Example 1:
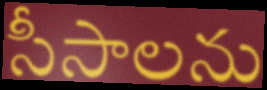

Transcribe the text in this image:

సీసాలను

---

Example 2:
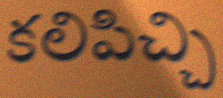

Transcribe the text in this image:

కలిపిచ్చి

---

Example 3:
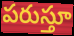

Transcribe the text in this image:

పరుస్తూ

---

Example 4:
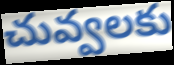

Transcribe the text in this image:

చువ్వలకు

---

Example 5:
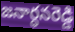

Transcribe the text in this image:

జనార్ధనరెడ్డి